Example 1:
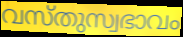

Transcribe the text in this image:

വസ്തുസ്വഭാവം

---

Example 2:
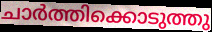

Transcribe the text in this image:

ചാർത്തിക്കൊടുത്തു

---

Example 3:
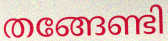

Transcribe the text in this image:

തങ്ങേണ്ടി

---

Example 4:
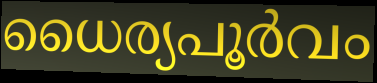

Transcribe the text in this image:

ധൈര്യപൂർവം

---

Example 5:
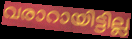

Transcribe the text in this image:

വരാറായിട്ടില്ല